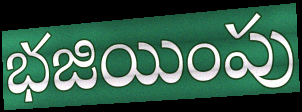
భజియింపు